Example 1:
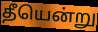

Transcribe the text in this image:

தீயென்று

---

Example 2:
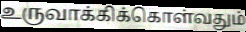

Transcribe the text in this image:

உருவாக்கிக்கொள்வதும்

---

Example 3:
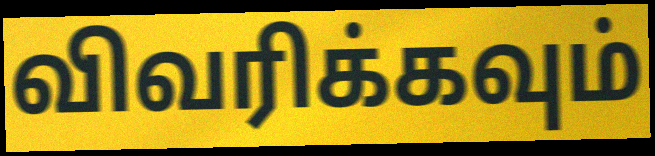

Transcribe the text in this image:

விவரிக்கவும்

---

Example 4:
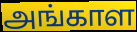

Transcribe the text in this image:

அங்காள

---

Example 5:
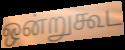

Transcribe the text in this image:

ஒன்றுகூட